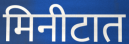
मिनीटात